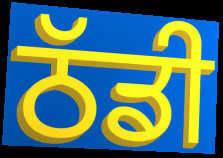
ਠੱਡੀ